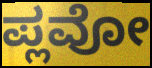
ಪ್ಲವೋ